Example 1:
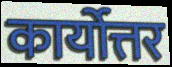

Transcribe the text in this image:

कार्योत्तर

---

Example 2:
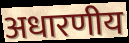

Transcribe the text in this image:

अधारणीय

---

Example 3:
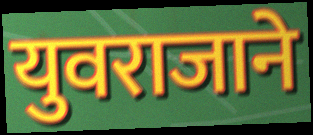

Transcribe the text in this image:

युवराजाने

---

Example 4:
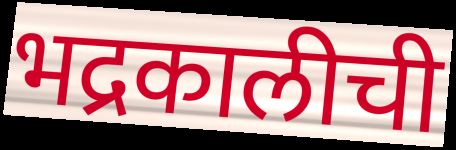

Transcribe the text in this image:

भद्रकालीची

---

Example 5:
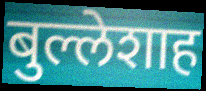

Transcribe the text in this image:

बुल्लेशाह